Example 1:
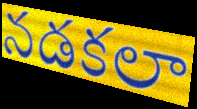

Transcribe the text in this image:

నడకలా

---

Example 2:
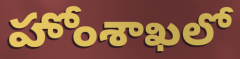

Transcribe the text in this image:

హోంశాఖలో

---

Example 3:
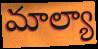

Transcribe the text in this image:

మాల్యా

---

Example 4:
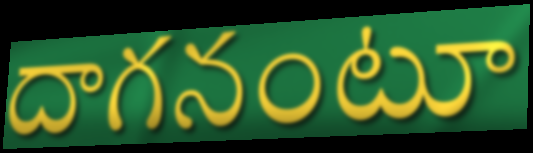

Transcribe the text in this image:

దాగనంటూ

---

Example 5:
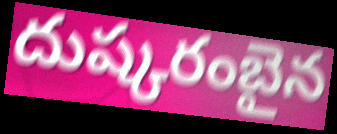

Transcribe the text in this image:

దుష్కరంబైన